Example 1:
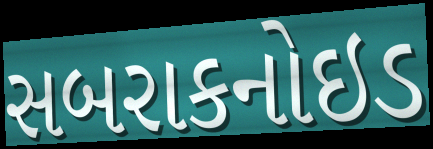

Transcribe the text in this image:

સબરાકનોઇડ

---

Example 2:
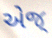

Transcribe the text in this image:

એજ્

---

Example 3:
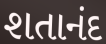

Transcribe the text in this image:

શતાનંદ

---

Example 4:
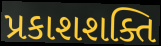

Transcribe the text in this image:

પ્રકાશશક્તિ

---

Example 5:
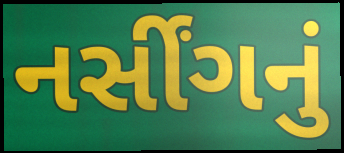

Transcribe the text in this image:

નર્સીંગનું